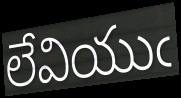
లేవియుఁ